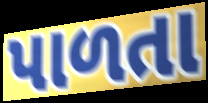
પાળતા